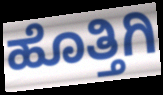
ಹೊತ್ತಿಗಿ